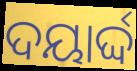
ଦୟାର୍ଦ୍ଦ